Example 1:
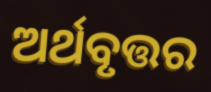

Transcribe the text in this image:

ଅର୍ଥବୃତ୍ତର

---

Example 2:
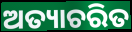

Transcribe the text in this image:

ଅତ୍ୟାଚରିତ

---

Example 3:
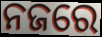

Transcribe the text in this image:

ନଜରେ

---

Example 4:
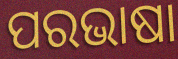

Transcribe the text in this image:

ପରଭାଷା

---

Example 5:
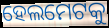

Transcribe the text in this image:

ହେଲମେଟକୁ